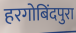
हरगोबिंदपुरा